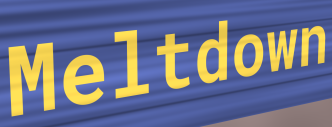
Meltdown